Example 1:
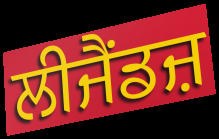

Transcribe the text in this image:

ਲੀਜੈਂਡਜ਼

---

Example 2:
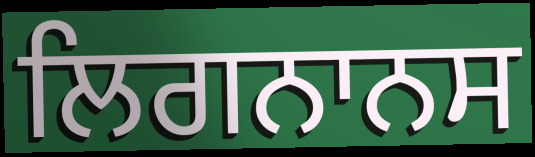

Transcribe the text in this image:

ਲਿਗਨਾਨਸ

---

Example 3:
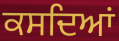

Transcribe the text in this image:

ਕਸਦਿਆਂ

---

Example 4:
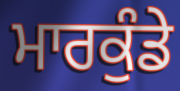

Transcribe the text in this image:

ਮਾਰਕੁੰਡੇ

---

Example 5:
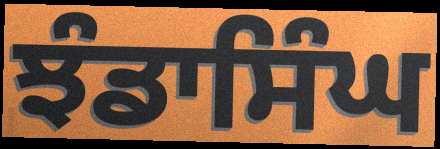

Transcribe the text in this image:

ਝੰਡਾਸਿੰਘ